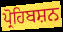
ਪ੍ਰੋਹਿਬਸ਼ਨ